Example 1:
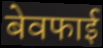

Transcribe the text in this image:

बेवफाई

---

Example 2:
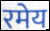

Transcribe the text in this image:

रमेय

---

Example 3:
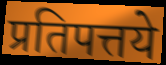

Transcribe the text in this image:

प्रतिपत्तये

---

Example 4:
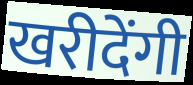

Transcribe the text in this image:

खरीदेंगी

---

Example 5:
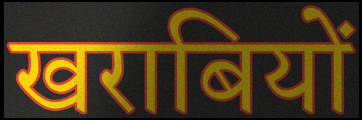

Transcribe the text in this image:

खराबियों